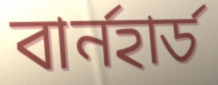
বার্নহার্ড